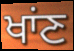
ਖਾਂਣ